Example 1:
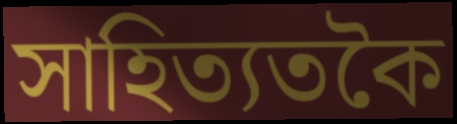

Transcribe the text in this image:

সাহিত্যতকৈ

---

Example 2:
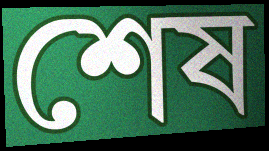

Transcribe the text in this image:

শেষ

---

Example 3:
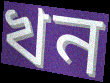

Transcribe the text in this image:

খন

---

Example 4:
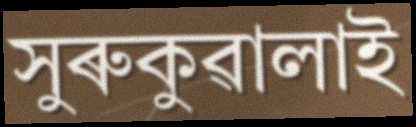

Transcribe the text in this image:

সুৰুকুৱালাই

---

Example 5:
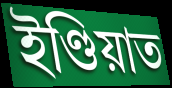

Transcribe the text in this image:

ইণ্ডিয়াত